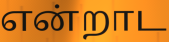
என்றாட